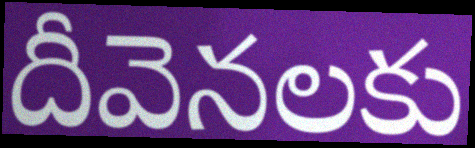
దీవెనలకు